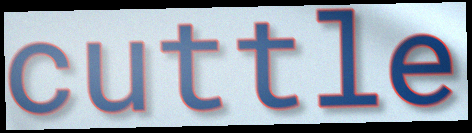
cuttle